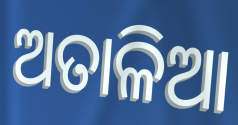
ଅତାଳିଆ